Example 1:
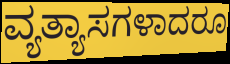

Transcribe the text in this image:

ವ್ಯತ್ಯಾಸಗಳಾದರೂ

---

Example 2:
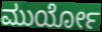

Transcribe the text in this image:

ಮುರ್ಯೋ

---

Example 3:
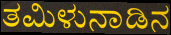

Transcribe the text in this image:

ತಮಿಳುನಾಡಿನ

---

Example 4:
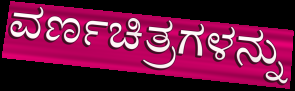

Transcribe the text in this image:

ವರ್ಣಚಿತ್ರಗಳನ್ನು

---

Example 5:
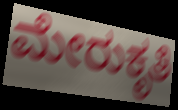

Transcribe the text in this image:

ಮೇರುಕೃತಿ